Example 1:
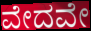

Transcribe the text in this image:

ವೇದವೇ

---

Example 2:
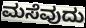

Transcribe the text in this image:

ಮಸೆವುದು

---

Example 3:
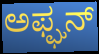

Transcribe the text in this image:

ಅಫ್ಘನ್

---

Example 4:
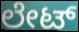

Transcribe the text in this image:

ಲೇಟ್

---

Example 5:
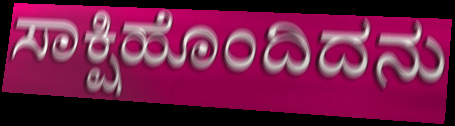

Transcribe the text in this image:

ಸಾಕ್ಷಿಹೊಂದಿದನು